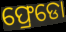
ଫ୍ରେଡୋ